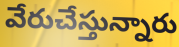
వేరుచేస్తున్నారు